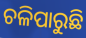
ଚଳିପାରୁଛି